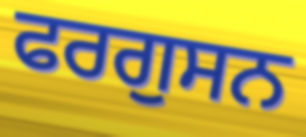
ਫਰਗੁਸਨ